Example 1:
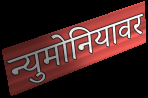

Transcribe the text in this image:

न्युमोनियावर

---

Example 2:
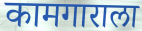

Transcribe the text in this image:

कामगाराला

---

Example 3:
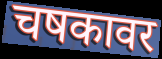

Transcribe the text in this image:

चषकावर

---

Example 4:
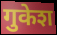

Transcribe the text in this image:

गुकेश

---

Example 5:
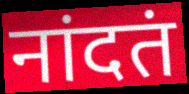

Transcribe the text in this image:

नांदतं